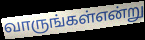
வாருங்கள்என்று